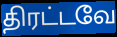
திரட்டவே